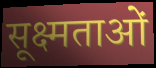
सूक्ष्मताओं